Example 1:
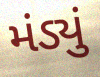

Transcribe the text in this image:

મંડ્યું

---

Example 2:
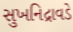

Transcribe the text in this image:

સુખનિદ્રાવડે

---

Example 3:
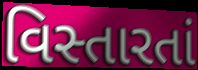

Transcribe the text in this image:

વિસ્તારતાં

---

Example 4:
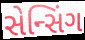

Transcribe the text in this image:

સેન્સિંગ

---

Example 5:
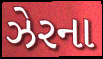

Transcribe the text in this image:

ઝેરના